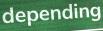
depending